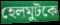
হেলমুটকে